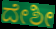
ದೇಶೀ